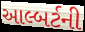
આલ્બર્ટની